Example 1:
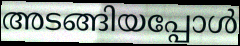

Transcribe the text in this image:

അടങ്ങിയപ്പോൾ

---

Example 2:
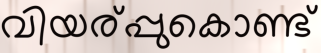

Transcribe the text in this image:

വിയര്പ്പുകൊണ്ട്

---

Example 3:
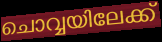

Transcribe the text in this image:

ചൊവ്വയിലേക്ക്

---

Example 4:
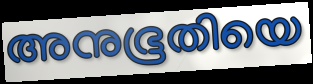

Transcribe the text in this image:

അനുഭൂതിയെ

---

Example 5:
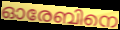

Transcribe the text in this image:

ഓരേബിനെ